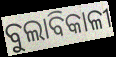
ବୁଲାବିକାଳୀ